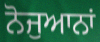
ਨੋਜੁਆਨਾਂ